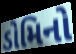
ડોમિનો